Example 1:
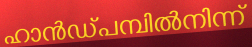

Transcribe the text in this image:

ഹാൻഡ്പമ്പിൽനിന്ന്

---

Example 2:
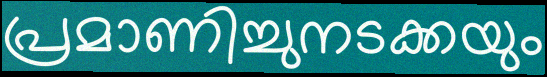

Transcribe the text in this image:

പ്രമാണിച്ചുനടക്കയും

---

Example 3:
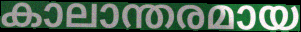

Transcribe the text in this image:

കാലാന്തരമായ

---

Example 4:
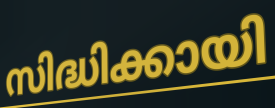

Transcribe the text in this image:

സിദ്ധിക്കായി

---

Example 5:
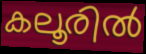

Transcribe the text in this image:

കലൂരിൽ